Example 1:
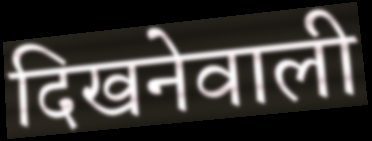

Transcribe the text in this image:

दिखनेवाली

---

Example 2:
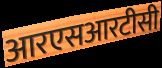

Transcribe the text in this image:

आरएसआरटीसी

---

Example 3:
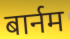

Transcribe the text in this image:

बार्नम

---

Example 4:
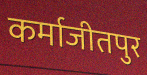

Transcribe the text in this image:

कर्माजीतपुर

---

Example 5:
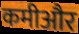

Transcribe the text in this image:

कमीऔर